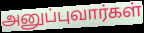
அனுப்புவார்கள்